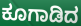
ಕೂಗಾಡಿದ